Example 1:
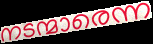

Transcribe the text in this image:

നടന്മാരെന്ന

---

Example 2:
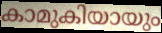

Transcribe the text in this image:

കാമുകിയായും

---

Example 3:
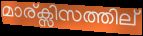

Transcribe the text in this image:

മാര്ക്സിസത്തില്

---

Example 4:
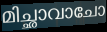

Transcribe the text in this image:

മിച്ഛാവാചോ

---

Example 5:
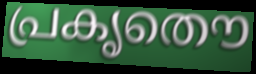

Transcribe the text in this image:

പ്രകൃതൌ